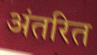
अंतरित